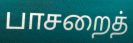
பாசறைத்